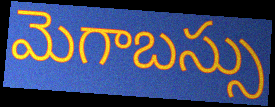
మెగాబస్సు